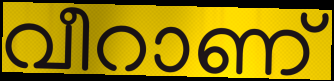
വീറാണ്